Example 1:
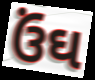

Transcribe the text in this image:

ઉંઘ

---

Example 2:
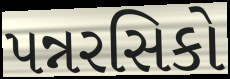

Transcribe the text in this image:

પન્નરસિકો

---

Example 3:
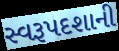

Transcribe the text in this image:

સ્વરૂપદશાની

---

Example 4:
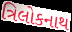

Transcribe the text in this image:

ત્રિલોકનાથ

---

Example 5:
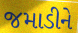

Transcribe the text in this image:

જમાડીને